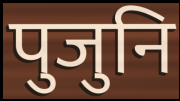
पुजुनि